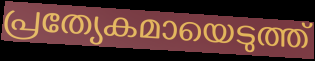
പ്രത്യേകമായെടുത്ത്